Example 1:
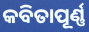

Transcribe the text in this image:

କବିତାପୂର୍ଣ୍ଣ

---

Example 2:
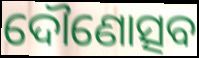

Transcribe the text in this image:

ଦୌଣୋତ୍ସବ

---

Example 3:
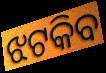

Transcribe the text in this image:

ଝଟକିବ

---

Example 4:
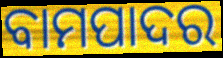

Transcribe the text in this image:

ବାମପାଦର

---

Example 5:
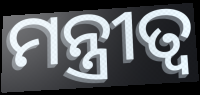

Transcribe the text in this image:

ମନ୍ତ୍ରୀତ୍ୱ